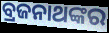
ବ୍ରଜନାଥଙ୍କର